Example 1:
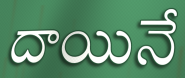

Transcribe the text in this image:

దాయినే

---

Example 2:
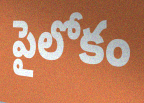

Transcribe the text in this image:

పైలోకం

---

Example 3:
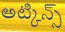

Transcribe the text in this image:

అట్కిన్స్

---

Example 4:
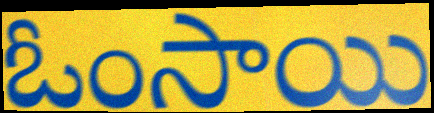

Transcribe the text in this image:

ఓంసాయి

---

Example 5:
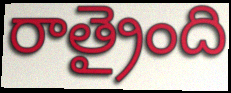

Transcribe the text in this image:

రాత్రైంది